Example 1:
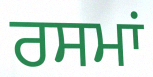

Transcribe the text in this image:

ਰਸਮਾਂ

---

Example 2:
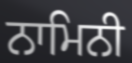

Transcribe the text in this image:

ਨਾਮਿਨੀ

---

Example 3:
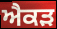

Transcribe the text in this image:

ਐਕੜ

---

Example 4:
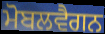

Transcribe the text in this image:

ਮੋਬਲਵੈਗਨ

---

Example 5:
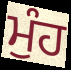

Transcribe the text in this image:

ਮੁੰਹ